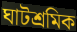
ঘাটশ্রমিক